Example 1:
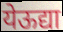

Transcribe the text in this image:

येऊद्या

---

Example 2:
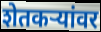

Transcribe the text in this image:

शेतकऱ्यांवर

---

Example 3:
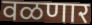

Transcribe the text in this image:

वळणार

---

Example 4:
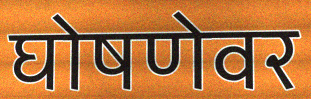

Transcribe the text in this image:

घोषणेवर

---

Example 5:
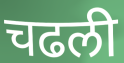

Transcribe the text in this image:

चढली